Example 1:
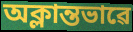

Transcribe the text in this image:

অক্লান্তভাৱে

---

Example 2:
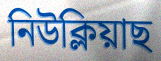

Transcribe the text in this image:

নিউক্লিয়াছ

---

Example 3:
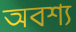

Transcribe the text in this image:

অবশ্য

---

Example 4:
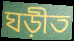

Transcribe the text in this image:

ঘড়ীত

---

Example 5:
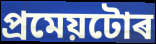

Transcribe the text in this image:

প্ৰমেয়টোৰ